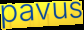
pavus